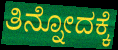
ತಿನ್ನೋದಕ್ಕೆ